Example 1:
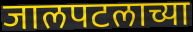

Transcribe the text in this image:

जालपटलाच्या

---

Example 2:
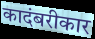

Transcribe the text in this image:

कादंबरीकार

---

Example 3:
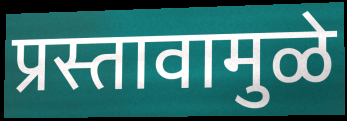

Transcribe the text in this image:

प्रस्तावामुळे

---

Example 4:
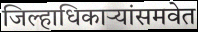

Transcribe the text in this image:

जिल्हाधिकाऱ्यांसमवेत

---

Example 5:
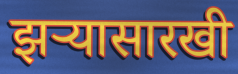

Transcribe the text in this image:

झर्‍यासारखी